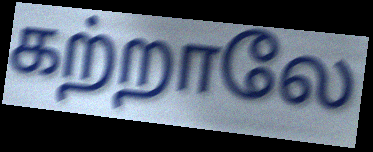
கற்றாலே